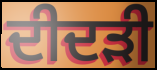
ਦੀਦੜੀ